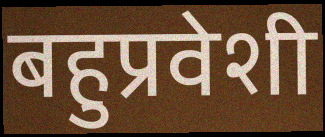
बहुप्रवेशी